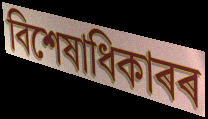
বিশেষাধিকাৰৰ